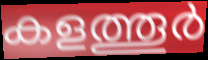
കളത്തൂർ